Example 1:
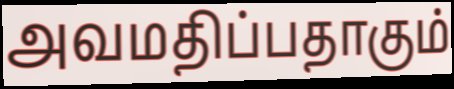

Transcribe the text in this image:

அவமதிப்பதாகும்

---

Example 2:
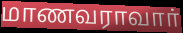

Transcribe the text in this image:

மாணவராவார்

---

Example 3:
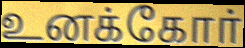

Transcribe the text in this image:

உனக்கோர்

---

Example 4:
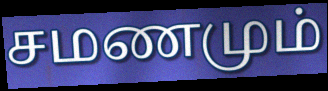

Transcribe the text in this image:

சமணமும்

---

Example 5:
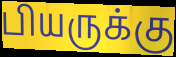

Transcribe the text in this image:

பியருக்கு